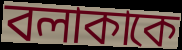
বলাকাকে